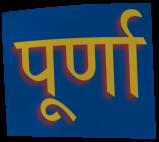
पूर्णा